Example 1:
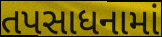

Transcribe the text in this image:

તપસાધનામાં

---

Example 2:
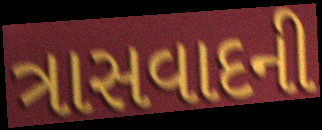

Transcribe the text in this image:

ત્રાસવાદની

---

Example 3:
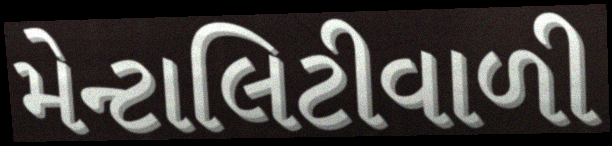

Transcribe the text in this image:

મેન્ટાલિટીવાળી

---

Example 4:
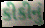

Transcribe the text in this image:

કીકીનું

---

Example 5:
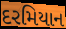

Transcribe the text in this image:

દરમિયાન